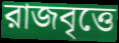
রাজবৃত্তে